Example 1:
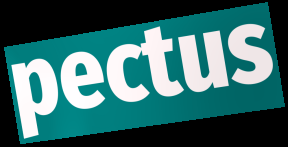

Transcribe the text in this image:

pectus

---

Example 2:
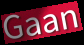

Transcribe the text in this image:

Gaan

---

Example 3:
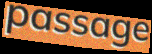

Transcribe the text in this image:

passage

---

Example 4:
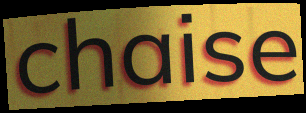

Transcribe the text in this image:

chaise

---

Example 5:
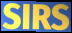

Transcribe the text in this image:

SIRS